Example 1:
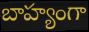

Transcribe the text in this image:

బాహ్యంగా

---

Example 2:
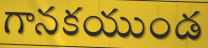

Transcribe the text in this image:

గానకయుండ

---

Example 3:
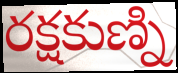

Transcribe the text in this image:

రక్షకుణ్ని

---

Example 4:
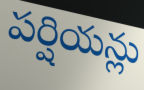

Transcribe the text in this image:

పర్షియన్లు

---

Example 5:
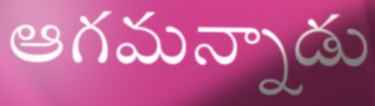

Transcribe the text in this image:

ఆగమన్నాడు